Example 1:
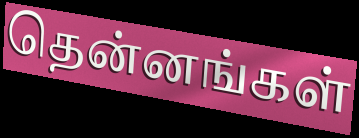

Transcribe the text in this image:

தென்னங்கள்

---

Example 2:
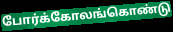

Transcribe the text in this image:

போர்க்கோலங்கொண்டு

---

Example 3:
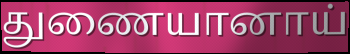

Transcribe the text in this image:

துணையானாய்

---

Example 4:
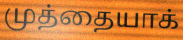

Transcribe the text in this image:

முத்தையாக்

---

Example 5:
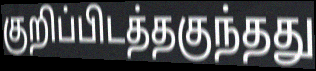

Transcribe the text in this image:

குறிப்பிடத்தகுந்தது